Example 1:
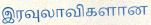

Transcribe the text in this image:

இரவுலாவிகளான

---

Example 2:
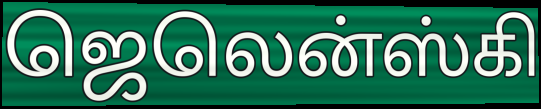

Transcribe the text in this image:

ஜெலென்ஸ்கி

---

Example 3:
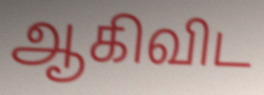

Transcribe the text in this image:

ஆகிவிட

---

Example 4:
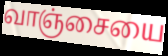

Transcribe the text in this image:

வாஞ்சையை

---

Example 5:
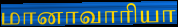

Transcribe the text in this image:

மானாவாரியா